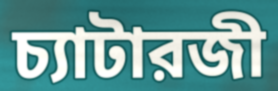
চ্যাটারজী